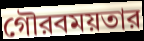
গৌরবময়তার